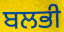
ਬਲਭੀ